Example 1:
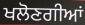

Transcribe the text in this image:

ਖਲੋਣਗੀਆਂ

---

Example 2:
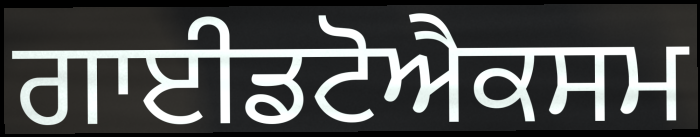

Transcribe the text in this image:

ਗਾਈਡਟੋਐਕਸਮ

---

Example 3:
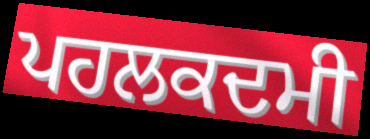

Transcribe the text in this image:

ਪਹਲਕਦਮੀ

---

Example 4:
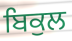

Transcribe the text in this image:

ਬਿਕੁਲ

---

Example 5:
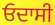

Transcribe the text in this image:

ਓਦਾਸੀ